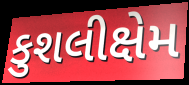
કુશલીક્ષેમ